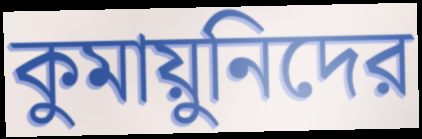
কুমায়ুনিদের